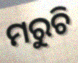
ମରୁଚି